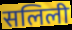
सलिली